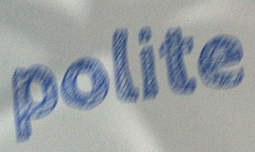
polite